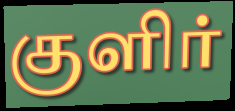
குளிர்